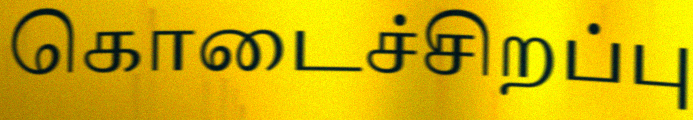
கொடைச்சிறப்பு